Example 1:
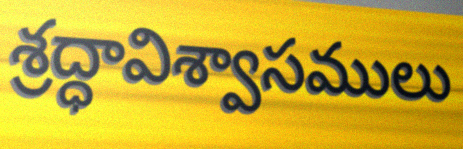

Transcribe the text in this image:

శ్రద్ధావిశ్వాసములు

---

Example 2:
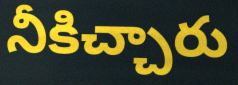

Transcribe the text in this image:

నీకిచ్చారు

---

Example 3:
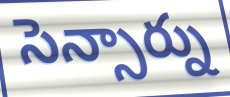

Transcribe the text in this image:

సెన్సార్ను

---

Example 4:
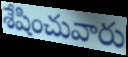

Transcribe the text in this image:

శేషించువారు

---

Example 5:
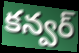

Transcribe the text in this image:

కన్వర్